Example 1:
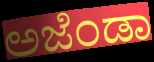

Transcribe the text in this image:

ಅಜೆಂಡಾ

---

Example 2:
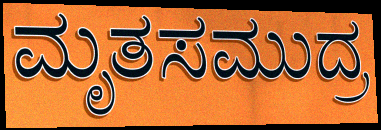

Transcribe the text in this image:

ಮೃತಸಮುದ್ರ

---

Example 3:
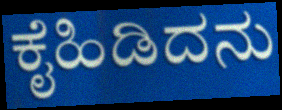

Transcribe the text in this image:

ಕೈಹಿಡಿದನು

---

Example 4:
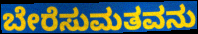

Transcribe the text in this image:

ಬೇರೆಸುಮತವನು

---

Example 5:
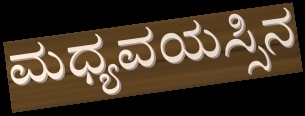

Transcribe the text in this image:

ಮಧ್ಯವಯಸ್ಸಿನ